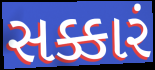
સક્કારં